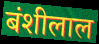
बंशीलाल